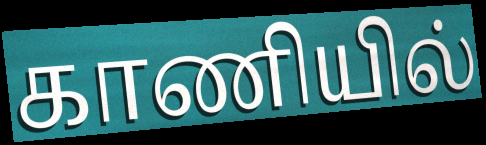
காணியில்